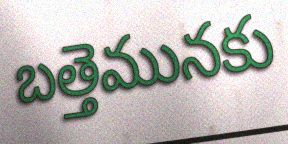
బత్తెమునకు